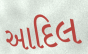
આદિલ